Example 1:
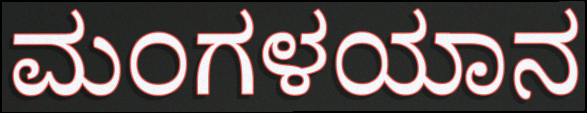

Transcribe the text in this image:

ಮಂಗಳಯಾನ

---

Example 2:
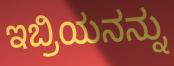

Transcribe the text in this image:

ಇಬ್ರಿಯನನ್ನು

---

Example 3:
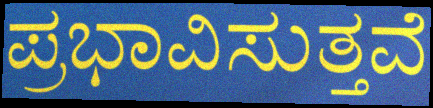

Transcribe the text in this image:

ಪ್ರಭಾವಿಸುತ್ತವೆ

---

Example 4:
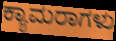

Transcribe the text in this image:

ಕ್ಯಾಮರಾಗಳು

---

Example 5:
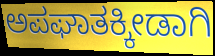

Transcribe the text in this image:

ಅಪಘಾತಕ್ಕೀಡಾಗಿ